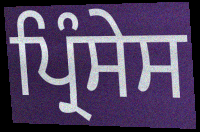
ਪ੍ਰਿੰਸੇਸ